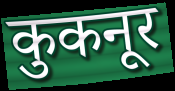
कुकनूर